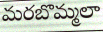
మరబొమ్మలా